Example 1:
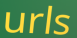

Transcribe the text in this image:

urls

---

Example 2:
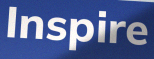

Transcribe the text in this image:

Inspire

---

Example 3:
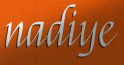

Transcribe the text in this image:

nadiye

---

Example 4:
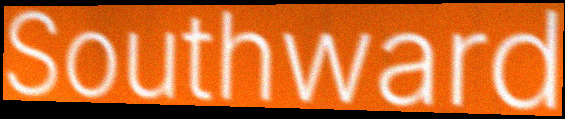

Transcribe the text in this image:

Southward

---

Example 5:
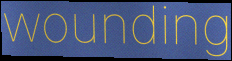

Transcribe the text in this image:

wounding